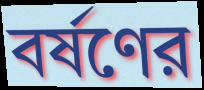
বর্ষণের